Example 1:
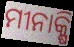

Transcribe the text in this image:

ମୀନାକ୍ଷି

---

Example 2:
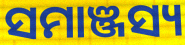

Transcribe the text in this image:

ସମାଞ୍ଜସ୍ୟ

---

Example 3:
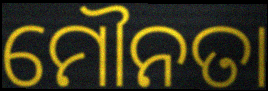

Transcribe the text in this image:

ମୌନତା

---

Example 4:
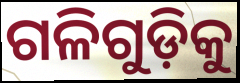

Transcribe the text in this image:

ଗଳିଗୁଡ଼ିକୁ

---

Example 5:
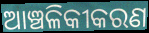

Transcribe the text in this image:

ଆଞ୍ଚଳିକୀକରଣ